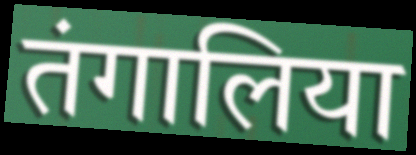
तंगालिया